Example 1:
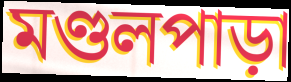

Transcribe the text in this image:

মণ্ডলপাড়া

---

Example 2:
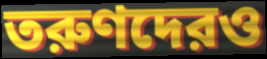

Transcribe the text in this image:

তরুণদেরও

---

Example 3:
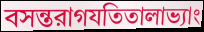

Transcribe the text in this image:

বসন্তরাগযতিতালাভ্যাং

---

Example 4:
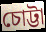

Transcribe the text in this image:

চোট্টা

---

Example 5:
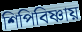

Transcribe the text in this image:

শিপিবিষ্ণায়